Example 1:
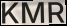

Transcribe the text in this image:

KMR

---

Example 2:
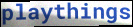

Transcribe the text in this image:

playthings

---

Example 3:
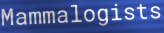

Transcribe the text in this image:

Mammalogists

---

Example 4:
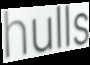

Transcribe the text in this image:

hulls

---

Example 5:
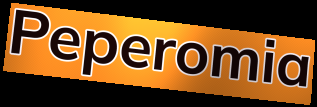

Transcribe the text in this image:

Peperomia